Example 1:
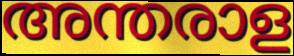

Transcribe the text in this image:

അന്തരാള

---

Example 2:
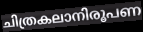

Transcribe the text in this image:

ചിത്രകലാനിരൂപണ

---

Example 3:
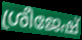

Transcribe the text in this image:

ശ്രീജേഷ്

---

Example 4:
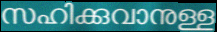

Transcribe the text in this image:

സഹിക്കുവാനുള്ള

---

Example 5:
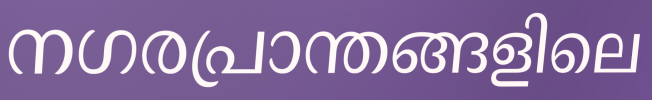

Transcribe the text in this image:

നഗരപ്രാന്തങ്ങളിലെ